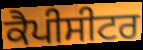
ਕੈਪੀਸੀਟਰ